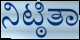
ನಿಟ್ಠಿತಾ